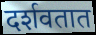
दर्शवतात